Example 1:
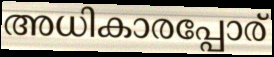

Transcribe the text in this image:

അധികാരപ്പോര്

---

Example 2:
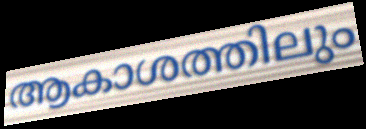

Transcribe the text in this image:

ആകാശത്തിലും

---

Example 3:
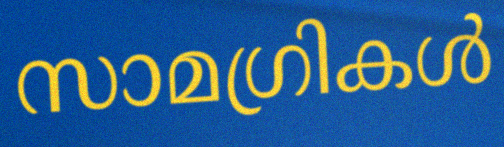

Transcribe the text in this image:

സാമഗ്രികൾ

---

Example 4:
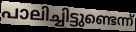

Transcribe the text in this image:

പാലിച്ചിട്ടുണ്ടെന്ന്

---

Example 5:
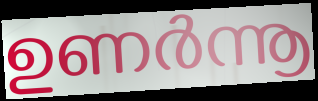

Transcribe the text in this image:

ഉണർന്നൂ